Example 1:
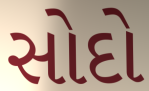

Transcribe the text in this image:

સોદો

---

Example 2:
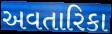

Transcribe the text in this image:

અવતારિકા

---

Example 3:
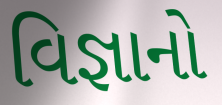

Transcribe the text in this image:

વિજ્ઞાનો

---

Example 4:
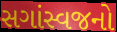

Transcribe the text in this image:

સગાંસ્વજનો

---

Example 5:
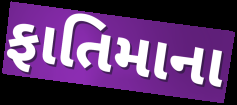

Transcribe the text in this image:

ફાતિમાના